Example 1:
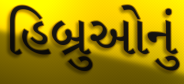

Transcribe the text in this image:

હિબ્રુઓનું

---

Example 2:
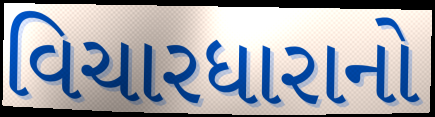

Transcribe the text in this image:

વિચારધારાનો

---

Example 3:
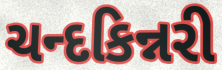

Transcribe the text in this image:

ચન્દકિન્નરી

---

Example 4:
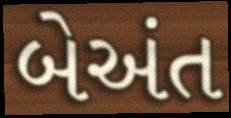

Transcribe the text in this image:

બેઅંત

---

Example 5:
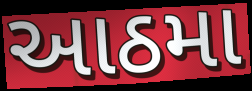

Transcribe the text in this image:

આઠમા